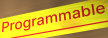
Programmable